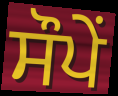
ਸੌਪੇਂ